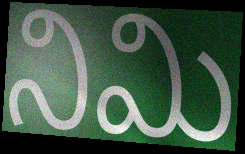
నిమి